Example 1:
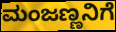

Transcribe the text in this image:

ಮಂಜಣ್ಣನಿಗೆ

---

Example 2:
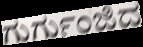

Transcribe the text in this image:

ಗುರ್ಗುಂಜಿದ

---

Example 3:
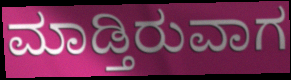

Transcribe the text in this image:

ಮಾಡ್ತಿರುವಾಗ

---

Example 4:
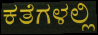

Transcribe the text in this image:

ಕತೆಗಳಲ್ಲಿ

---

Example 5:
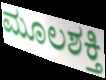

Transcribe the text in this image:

ಮೂಲಶಕ್ತಿ